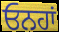
ਓਨਹਾਂ